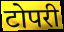
टोपरी